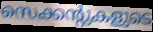
സെക്കന്റുകളുടെ